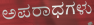
ಅಪರಾಧಗಳು